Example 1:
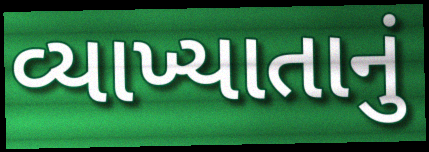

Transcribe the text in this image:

વ્યાખ્યાતાનું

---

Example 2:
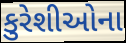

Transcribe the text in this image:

કુરેશીઓના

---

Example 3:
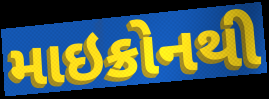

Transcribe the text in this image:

માઇક્રોનથી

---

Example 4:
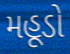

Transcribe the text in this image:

મહૂડો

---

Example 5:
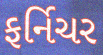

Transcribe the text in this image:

ફર્નિચર